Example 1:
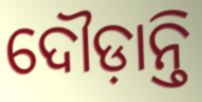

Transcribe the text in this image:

ଦୌଡ଼ାନ୍ତି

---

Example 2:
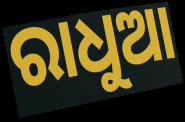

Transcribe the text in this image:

ରାଧୁଆ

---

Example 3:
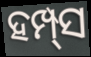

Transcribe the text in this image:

ହମ୍ପ୍‌ସ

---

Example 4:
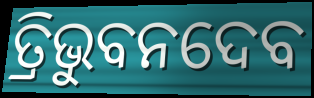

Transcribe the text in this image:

ତ୍ରିଭୁବନଦେବ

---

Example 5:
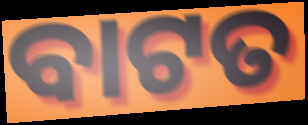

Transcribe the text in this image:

ବାଟତ